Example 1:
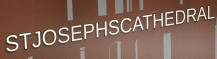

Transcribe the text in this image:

STJOSEPHSCATHEDRAL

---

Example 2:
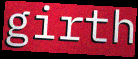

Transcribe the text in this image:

girth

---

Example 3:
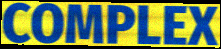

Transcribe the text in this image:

COMPLEX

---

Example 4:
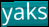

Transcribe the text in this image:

yaks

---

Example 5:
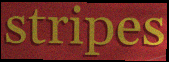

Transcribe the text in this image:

stripes